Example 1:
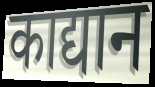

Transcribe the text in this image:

काद्यान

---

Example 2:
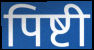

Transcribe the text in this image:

पिष्टी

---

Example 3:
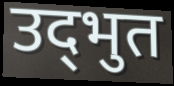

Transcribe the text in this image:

उद्भुत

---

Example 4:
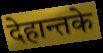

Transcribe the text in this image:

देहान्तके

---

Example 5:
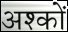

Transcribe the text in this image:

अश्कों